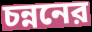
চন্ননের